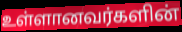
உள்ளானவர்களின்